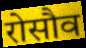
रोसौव